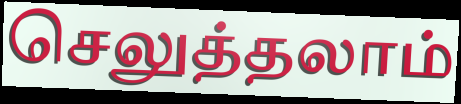
செலுத்தலாம்